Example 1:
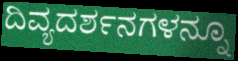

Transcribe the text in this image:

ದಿವ್ಯದರ್ಶನಗಳನ್ನೂ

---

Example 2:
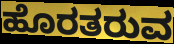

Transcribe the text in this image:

ಹೊರತರುವ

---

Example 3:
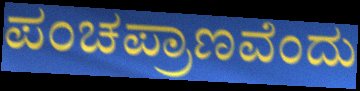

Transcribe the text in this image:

ಪಂಚಪ್ರಾಣವೆಂದು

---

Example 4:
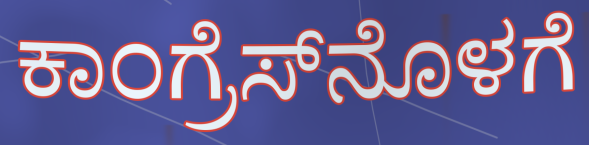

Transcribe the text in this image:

ಕಾಂಗ್ರೆಸ್‌ನೊಳಗೆ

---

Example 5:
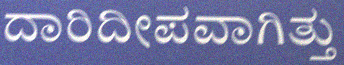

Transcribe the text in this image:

ದಾರಿದೀಪವಾಗಿತ್ತು